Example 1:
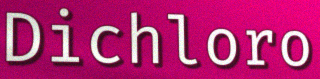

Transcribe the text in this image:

Dichloro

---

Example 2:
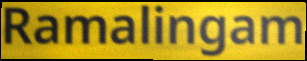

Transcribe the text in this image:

Ramalingam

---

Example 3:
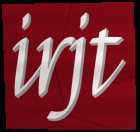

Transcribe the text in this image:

irjt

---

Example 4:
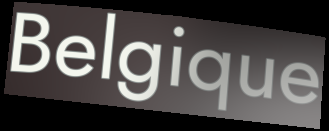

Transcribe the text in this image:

Belgique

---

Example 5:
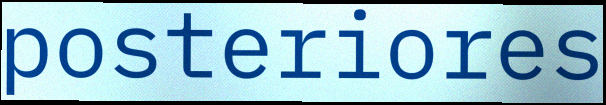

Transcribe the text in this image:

posteriores